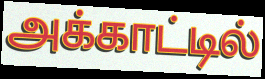
அக்காட்டில்